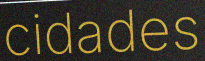
cidades